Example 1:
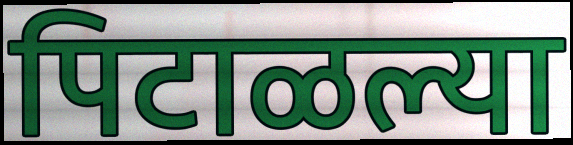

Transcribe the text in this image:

पिटाळल्या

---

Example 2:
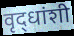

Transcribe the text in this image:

वृद्धांशी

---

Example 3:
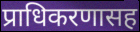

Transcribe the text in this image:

प्राधिकरणासह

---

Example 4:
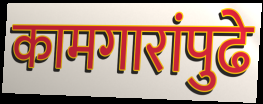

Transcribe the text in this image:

कामगारांपुढे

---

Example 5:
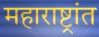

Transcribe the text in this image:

महाराष्ट्रांत